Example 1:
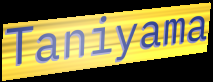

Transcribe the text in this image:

Taniyama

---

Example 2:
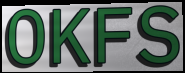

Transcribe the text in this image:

OKFS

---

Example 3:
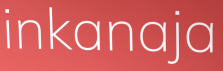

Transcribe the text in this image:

inkanaja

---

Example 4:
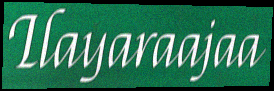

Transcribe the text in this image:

Ilayaraajaa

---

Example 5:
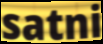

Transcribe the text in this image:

satni